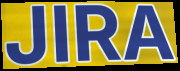
JIRA